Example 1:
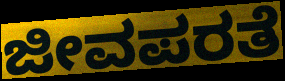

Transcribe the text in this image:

ಜೀವಪರತೆ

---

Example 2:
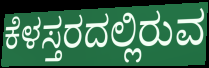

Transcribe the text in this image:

ಕೆಳಸ್ತರದಲ್ಲಿರುವ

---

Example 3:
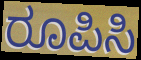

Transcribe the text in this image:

ರೂಪಿಸಿ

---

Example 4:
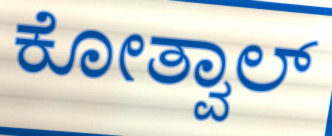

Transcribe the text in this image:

ಕೋತ್ವಾಲ್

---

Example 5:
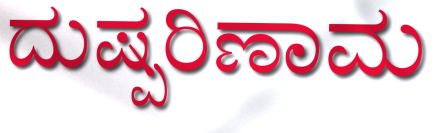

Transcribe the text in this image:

ದುಷ್ಪರಿಣಾಮ